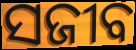
ସଜୀବ